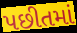
પછીતમાં